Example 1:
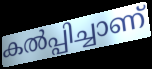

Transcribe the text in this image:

കൽപ്പിച്ചാണ്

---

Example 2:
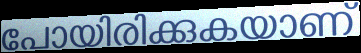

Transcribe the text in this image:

പോയിരിക്കുകയാണ്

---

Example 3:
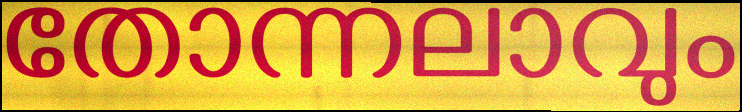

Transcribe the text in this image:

തോന്നലാവും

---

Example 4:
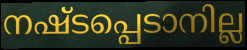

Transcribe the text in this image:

നഷ്ടപ്പെടാനില്ല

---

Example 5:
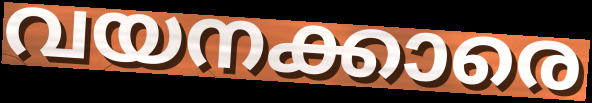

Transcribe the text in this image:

വയനക്കാരെ